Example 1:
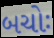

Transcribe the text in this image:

બચોઃ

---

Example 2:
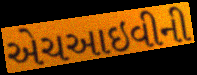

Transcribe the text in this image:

એચઆઇવીની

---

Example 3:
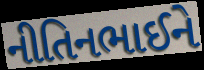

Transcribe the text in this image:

નીતિનભાઈને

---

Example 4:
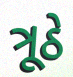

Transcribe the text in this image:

ત્રૂઠે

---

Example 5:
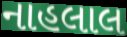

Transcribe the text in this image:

નાહલાલ